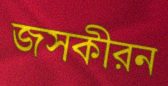
জসকীরন